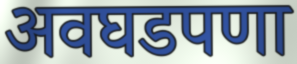
अवघडपणा